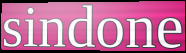
sindone